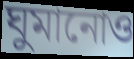
ঘুমানোও